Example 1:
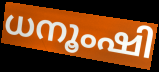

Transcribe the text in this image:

ധനൂംഷി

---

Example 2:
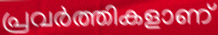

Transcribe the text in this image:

പ്രവർത്തികളാണ്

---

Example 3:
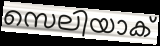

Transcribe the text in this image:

സെലിയാക്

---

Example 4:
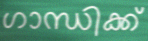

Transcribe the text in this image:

ഗാന്ധിക്ക്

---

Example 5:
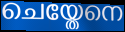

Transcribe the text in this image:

ചെയ്തേനെ